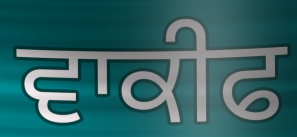
ਵਾਕੀਫ